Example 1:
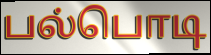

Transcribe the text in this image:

பல்பொடி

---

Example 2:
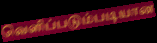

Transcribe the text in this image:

வெளிப்படும்படியான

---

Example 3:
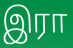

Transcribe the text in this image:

இரா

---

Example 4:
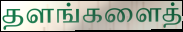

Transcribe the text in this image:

தளங்களைத்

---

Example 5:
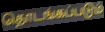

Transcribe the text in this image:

தொடங்கப்படும்